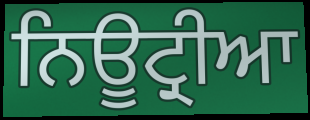
ਨਿਊਟ੍ਰੀਆ